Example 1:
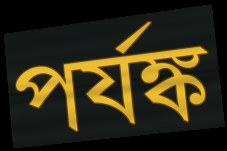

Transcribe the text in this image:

পর্যঙ্ক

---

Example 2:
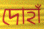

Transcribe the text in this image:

দোহাঁ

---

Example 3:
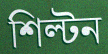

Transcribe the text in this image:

শিল্টন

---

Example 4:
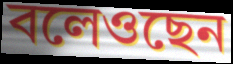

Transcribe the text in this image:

বলেওছেন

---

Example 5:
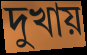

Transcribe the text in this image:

দুখায়